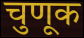
चुणूक